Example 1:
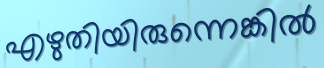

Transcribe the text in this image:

എഴുതിയിരുന്നെങ്കിൽ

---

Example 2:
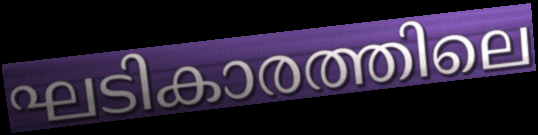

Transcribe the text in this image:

ഘടികാരത്തിലെ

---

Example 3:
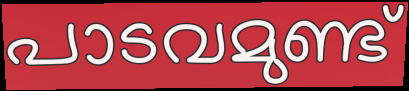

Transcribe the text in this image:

പാടവമുണ്ട്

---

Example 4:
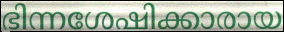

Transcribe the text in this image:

ഭിന്നശേഷിക്കാരായ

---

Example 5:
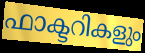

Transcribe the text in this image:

ഫാക്ടറികളും